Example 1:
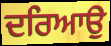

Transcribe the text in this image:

ਦਰਿਆਉ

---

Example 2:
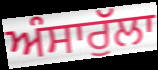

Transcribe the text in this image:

ਅੰਸਾਰੁੱਲਾ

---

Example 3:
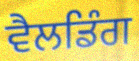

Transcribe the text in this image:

ਵੈਲਡਿੰਗ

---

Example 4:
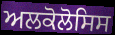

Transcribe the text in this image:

ਅਲਕੋਲੋਸਿਸ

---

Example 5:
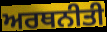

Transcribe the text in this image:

ਅਰਥਨੀਤੀ